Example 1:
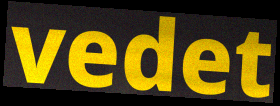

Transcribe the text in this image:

vedet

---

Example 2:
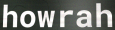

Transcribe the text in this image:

howrah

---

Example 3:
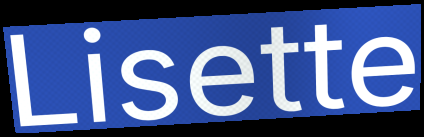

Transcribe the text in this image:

Lisette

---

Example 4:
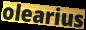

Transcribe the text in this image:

olearius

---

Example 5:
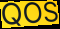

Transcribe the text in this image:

QOS